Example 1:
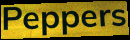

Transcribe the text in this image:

Peppers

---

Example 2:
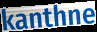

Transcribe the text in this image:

kanthne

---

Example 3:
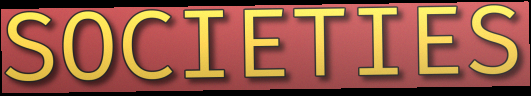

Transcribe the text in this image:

SOCIETIES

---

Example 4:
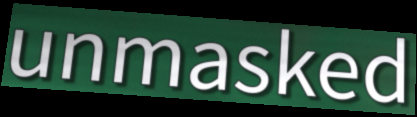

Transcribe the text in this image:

unmasked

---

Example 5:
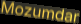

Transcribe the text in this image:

Mozumdar